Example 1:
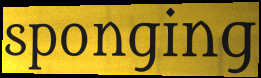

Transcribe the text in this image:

sponging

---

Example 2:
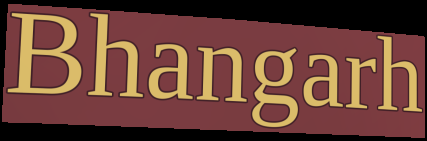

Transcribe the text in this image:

Bhangarh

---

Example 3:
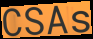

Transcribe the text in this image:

CSAs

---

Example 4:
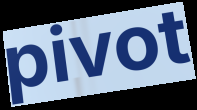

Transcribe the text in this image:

pivot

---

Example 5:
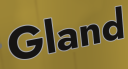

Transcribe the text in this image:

Gland